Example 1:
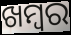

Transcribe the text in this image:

ଖମ୍ୱର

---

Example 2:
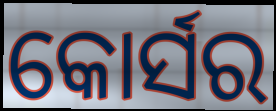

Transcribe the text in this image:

କୋର୍ସର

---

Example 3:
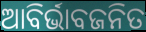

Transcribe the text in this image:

ଆବିର୍ଭାବଜନିତ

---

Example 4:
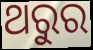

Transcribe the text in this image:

ଥରୁର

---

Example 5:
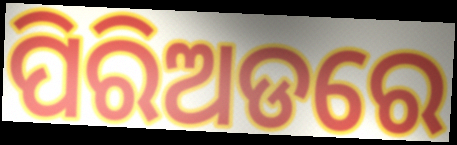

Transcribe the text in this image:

ପିରିଅଡରେ